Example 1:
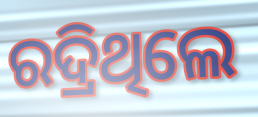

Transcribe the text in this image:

ରଦ୍ରିଥିଲେ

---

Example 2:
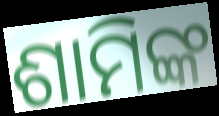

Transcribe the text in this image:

ଶାମିଙ୍କ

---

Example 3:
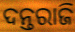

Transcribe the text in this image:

ଦନ୍ତରାଜି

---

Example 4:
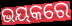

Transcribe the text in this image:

ଭୟକରେ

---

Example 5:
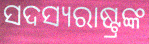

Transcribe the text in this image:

ସଦସ୍ୟରାଷ୍ଟ୍ରଙ୍କ